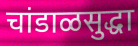
चांडाळसुद्धा